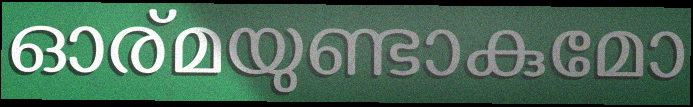
ഓര്മയുണ്ടാകുമോ